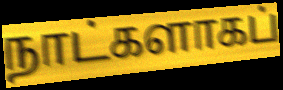
நாட்களாகப்